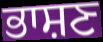
ਭਾਸ਼ਣ